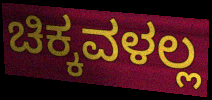
ಚಿಕ್ಕವಳಲ್ಲ